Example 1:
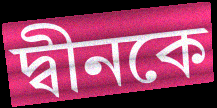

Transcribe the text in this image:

দ্বীনকে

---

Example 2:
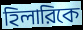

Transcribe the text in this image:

হিলারিকে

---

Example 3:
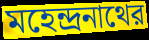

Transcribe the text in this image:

মহেন্দ্রনাথের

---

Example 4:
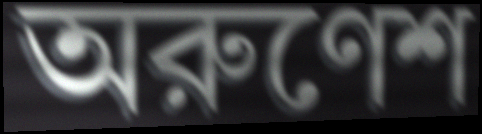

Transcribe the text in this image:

অরুণেশ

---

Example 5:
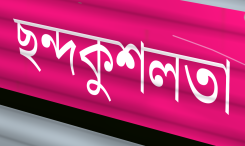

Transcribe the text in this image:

ছন্দকুশলতা